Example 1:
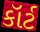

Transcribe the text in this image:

કૉર્ટ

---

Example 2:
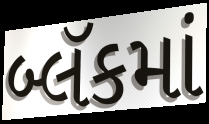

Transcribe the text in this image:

બ્લૅકમાં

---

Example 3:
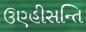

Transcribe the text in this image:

ઉણ્હીસન્તિ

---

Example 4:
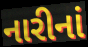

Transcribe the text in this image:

નારીનાં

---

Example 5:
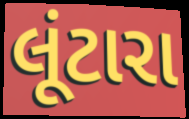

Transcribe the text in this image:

લૂંટારા